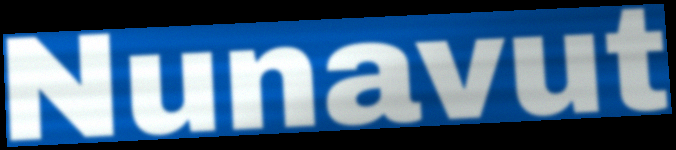
Nunavut